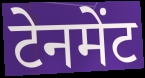
टेनमेंट